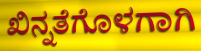
ಖಿನ್ನತೆಗೊಳಗಾಗಿ